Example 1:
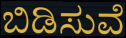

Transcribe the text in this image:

ಬಿಡಿಸುವೆ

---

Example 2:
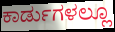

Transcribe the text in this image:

ಕಾರ್ಡುಗಳಲ್ಲೂ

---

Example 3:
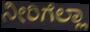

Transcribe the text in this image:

ನೀರಿಗೆಲ್ಲಾ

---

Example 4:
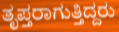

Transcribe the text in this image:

ತೃಪ್ತರಾಗುತ್ತಿದ್ದರು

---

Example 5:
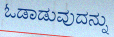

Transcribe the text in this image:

ಓಡಾಡುವುದನ್ನು